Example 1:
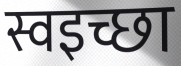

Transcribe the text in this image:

स्वइच्छा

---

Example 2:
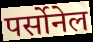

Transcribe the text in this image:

पर्सोनेल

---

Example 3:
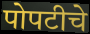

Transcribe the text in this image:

पोपटीचे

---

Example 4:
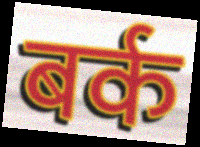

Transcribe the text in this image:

बर्क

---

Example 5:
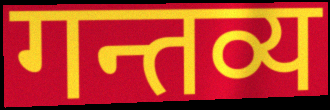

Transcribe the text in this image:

गन्तव्य